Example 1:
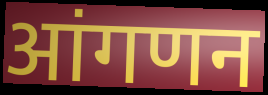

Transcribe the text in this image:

आंगणन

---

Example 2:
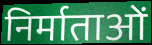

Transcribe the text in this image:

निर्माताओं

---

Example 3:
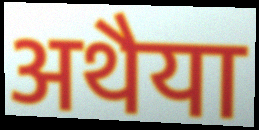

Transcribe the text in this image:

अथैया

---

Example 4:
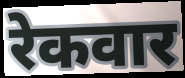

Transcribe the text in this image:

रेकवार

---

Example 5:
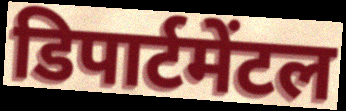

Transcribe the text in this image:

डिपार्टमेंटल